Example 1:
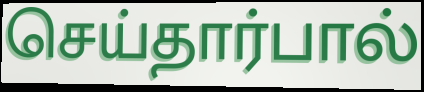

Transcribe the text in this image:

செய்தார்பால்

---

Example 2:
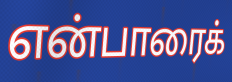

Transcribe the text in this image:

என்பாரைக்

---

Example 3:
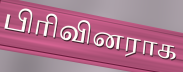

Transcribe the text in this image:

பிரிவினராக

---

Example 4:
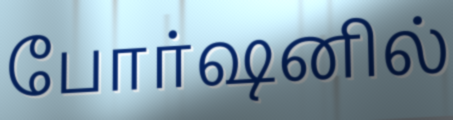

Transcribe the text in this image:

போர்ஷனில்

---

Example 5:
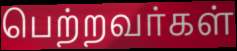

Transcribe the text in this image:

பெற்றவர்கள்